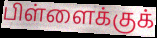
பிள்ளைக்குக்